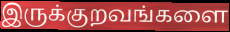
இருக்குறவங்களை